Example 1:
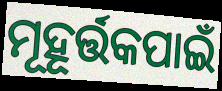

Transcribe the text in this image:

ମୂହୂର୍ତ୍ତକପାଇଁ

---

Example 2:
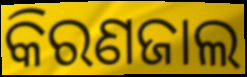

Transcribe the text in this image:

କିରଣଜାଲ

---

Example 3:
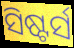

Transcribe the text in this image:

ସିଷ୍ଟର୍ସ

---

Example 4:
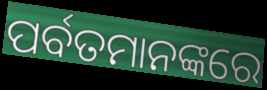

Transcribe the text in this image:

ପର୍ବତମାନଙ୍କରେ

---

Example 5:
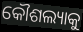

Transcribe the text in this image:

କୌଶଲ୍ୟାକୁ